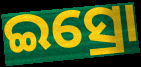
ଇସ୍ରୋ